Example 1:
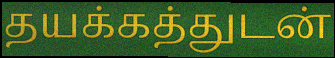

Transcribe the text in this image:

தயக்கத்துடன்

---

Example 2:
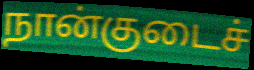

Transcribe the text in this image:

நான்குடைச்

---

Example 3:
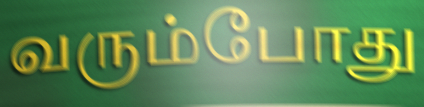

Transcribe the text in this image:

வரும்போது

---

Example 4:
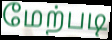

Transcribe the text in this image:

மேற்படி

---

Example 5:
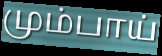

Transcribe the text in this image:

மும்பாய்